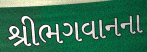
શ્રીભગવાનના